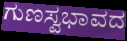
ಗುಣಸ್ವಭಾವದ